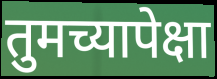
तुमच्यापेक्षा